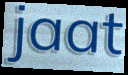
jaat